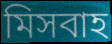
মিসবাহ